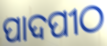
ପାଦପୀଠ